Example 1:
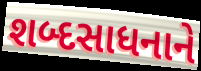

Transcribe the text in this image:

શબ્દસાધનાને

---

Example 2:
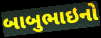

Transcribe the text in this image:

બાબુભાઇનો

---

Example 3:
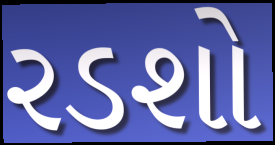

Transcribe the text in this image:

રડશો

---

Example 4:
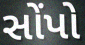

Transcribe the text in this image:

સોંપો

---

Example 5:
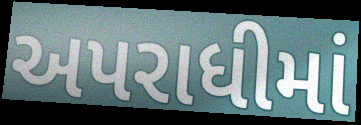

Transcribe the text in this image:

અપરાધીમાં